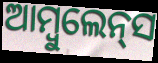
ଆମ୍ବୁଲେନ୍‍ସ